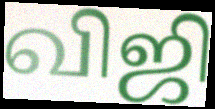
விஜி